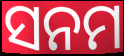
ସନମ